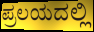
ಪ್ರಲಯದಲ್ಲಿ